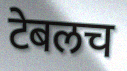
टेबलच